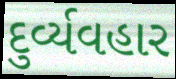
દુર્વ્યવહાર